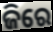
ଜିରେ